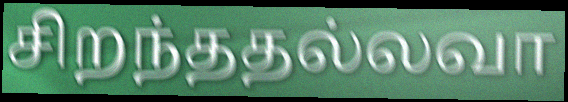
சிறந்ததல்லவா